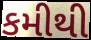
કમીથી